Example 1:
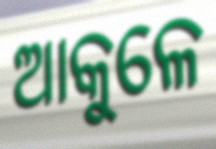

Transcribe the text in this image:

ଆକୁଳେ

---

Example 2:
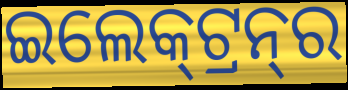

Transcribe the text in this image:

ଇଲେକ୍‍ଟ୍ରନ୍‍ର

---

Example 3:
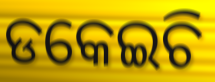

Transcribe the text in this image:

ଡକେଇଚି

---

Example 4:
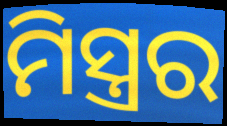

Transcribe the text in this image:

ମିସ୍ତ୍ରର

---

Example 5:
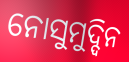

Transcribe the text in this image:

ନୋସୁମୁଦ୍ଦିନ